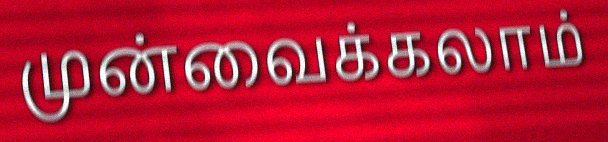
முன்வைக்கலாம்